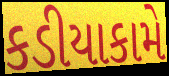
કડીયાકામે